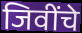
जिवींचे